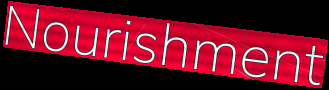
Nourishment